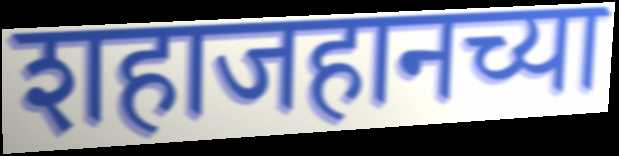
शहाजहानच्या